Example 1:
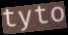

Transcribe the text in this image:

tyto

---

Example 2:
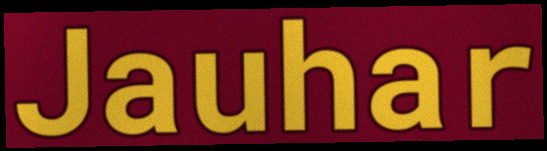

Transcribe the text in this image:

Jauhar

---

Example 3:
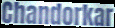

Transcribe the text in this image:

Chandorkar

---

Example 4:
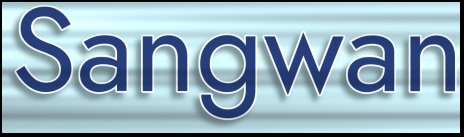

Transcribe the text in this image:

Sangwan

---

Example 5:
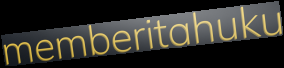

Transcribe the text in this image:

memberitahuku